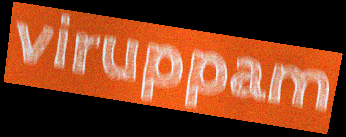
viruppam